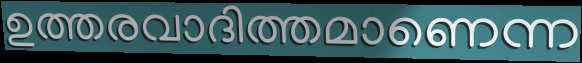
ഉത്തരവാദിത്തമാണെന്ന